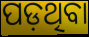
ପଡ଼ଥିବା